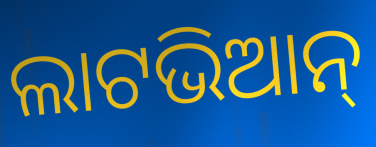
ଲାଟଭିଆନ୍